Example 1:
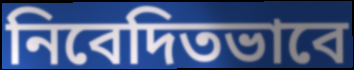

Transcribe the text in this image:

নিবেদিতভাবে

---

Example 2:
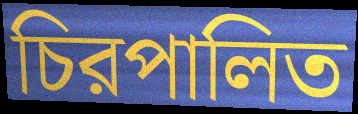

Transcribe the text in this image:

চিরপালিত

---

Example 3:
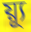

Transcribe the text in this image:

য়্যূ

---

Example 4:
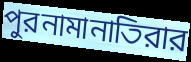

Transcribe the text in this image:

পুরনামানাতিরার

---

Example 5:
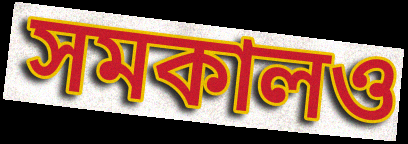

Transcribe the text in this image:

সমকালও